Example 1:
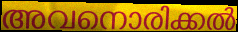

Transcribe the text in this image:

അവനൊരിക്കൽ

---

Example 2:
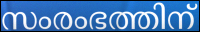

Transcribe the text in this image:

സംരംഭത്തിന്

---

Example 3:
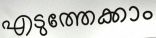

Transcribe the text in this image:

എടുത്തേക്കാം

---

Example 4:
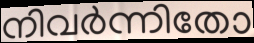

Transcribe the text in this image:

നിവർന്നിതോ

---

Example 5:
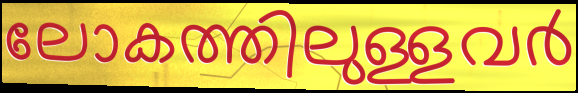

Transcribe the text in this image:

ലോകത്തിലുള്ളവർ